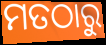
ମତଠାରୁ